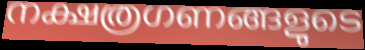
നക്ഷത്രഗണങ്ങളുടെ